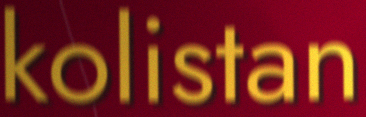
kolistan